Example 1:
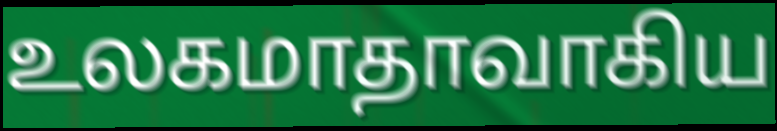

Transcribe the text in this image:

உலகமாதாவாகிய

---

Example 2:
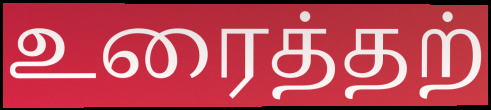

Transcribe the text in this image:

உரைத்தற்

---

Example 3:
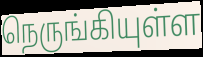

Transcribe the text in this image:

நெருங்கியுள்ள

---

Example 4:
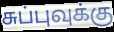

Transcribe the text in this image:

சுப்புவுக்கு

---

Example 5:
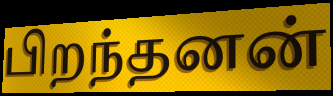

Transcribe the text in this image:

பிறந்தனன்